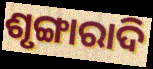
ଶୃଙ୍ଗାରାଦି